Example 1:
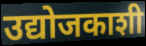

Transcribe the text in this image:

उद्योजकाशी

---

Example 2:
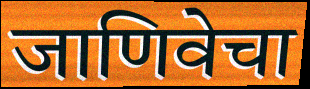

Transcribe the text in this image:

जाणिवेचा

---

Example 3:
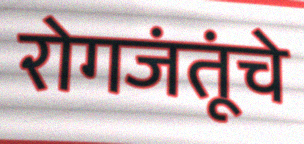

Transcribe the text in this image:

रोगजंतूंचे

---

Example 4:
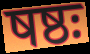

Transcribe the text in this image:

षष्ठः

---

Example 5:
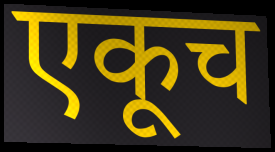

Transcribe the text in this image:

एकूच